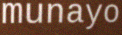
munayo